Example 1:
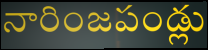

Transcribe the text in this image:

నారింజపండ్లు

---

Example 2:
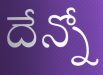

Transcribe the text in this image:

దేన్నో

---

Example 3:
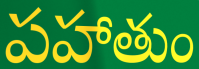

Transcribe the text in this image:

పహాతుం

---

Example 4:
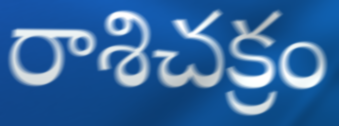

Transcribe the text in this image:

రాశిచక్రం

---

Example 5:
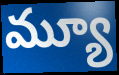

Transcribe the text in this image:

మ్యూ